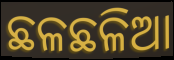
ଛଳଛଳିଆ